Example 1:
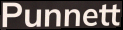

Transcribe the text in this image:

Punnett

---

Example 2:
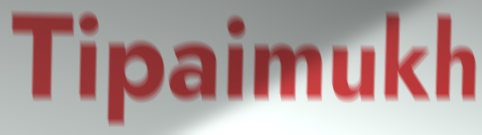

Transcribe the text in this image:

Tipaimukh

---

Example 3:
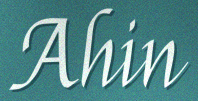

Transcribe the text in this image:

Ahin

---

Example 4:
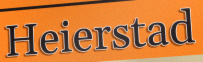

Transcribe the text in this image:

Heierstad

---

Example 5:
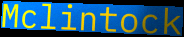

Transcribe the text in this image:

Mclintock